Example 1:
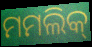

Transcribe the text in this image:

ମମଲିକ୍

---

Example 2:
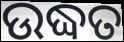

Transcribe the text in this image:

ଉଦ୍ଧତ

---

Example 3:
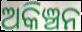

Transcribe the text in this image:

ଅକିଞ୍ଚନ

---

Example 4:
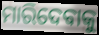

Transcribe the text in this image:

ମାରିଦେବାକୁ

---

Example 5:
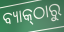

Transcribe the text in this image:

ବ୍ୟାକ୍‌ଠାରୁ